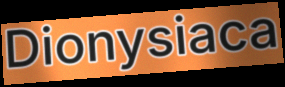
Dionysiaca